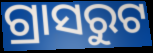
ଗ୍ରାସରୁଟ